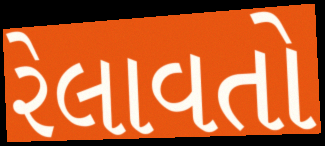
રેલાવતો